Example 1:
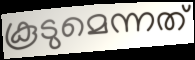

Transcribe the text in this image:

കൂടുമെന്നത്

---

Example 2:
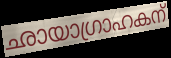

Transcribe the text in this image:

ഛായാഗ്രാഹകന്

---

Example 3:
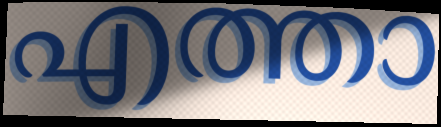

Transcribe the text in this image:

എത്താ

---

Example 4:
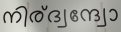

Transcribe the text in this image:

നിര്ദ്വന്ദ്വോ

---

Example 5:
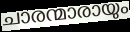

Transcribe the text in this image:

ചാരന്മാരായും